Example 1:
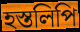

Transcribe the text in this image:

হস্তলিপি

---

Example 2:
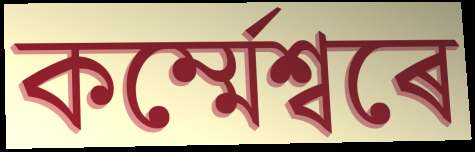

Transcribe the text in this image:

কৰ্ম্মেশ্বৰে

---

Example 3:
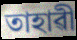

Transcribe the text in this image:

তাহাৱী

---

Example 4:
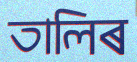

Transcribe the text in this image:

তালিৰ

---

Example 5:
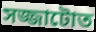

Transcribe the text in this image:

সজ্জাটোত